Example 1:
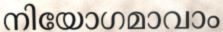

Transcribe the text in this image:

നിയോഗമാവാം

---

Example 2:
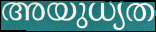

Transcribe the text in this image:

അയുധ്യത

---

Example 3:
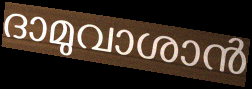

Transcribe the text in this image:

ദാമുവാശാൻ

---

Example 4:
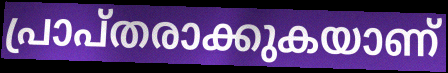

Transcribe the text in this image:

പ്രാപ്തരാക്കുകയാണ്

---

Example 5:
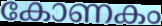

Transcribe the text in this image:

കോണകം